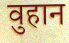
वुहान